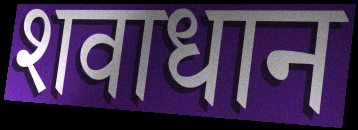
शवाधान